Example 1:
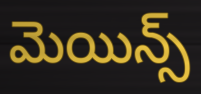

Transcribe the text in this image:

మెయిన్స్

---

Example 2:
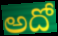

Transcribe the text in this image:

అదో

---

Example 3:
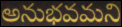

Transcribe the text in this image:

అనుభవమని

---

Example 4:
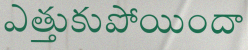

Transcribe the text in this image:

ఎత్తుకుపోయిందా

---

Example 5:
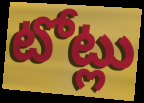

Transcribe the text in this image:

టోట్లు